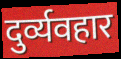
दुर्व्‍यवहार